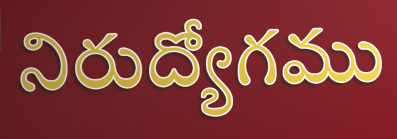
నిరుద్యోగము